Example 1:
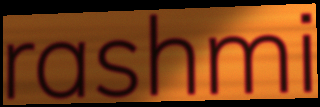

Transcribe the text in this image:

rashmi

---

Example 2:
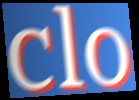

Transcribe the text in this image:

clo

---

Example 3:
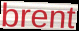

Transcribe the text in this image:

brent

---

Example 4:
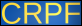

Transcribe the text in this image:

CRPF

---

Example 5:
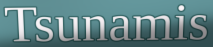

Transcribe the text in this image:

Tsunamis